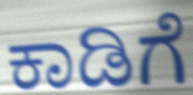
ಕಾಡಿಗೆ